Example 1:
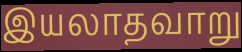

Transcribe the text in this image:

இயலாதவாறு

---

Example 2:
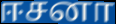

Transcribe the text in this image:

ஈசனா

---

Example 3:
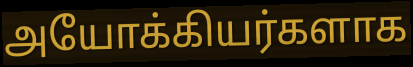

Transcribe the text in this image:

அயோக்கியர்களாக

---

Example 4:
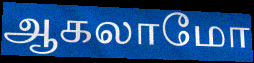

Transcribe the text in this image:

ஆகலாமோ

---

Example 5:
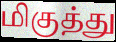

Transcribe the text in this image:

மிகுத்து